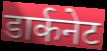
डार्कनेट